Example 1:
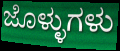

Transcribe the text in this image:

ಜೊಳ್ಳುಗಳು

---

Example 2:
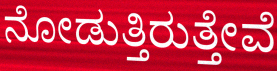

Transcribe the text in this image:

ನೋಡುತ್ತಿರುತ್ತೇವೆ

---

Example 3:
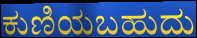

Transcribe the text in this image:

ಕುಣಿಯಬಹುದು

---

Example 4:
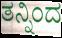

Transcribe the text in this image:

ತನ್ನಿಂದ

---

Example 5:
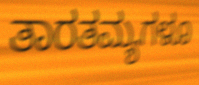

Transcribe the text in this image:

ತಾರತಮ್ಯಗಳೂ